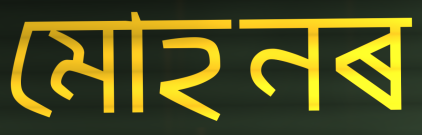
মোহনৰ